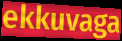
ekkuvaga